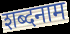
शब्दनाम